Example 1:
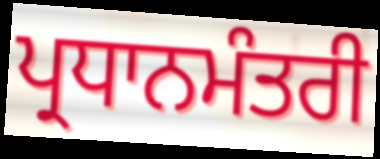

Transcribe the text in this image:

ਪ੍ਰਧਾਨਮੰਤਰੀ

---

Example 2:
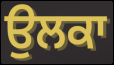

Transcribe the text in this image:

ਉਲਕਾ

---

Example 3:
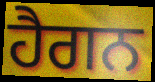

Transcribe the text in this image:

ਹੈਗਨ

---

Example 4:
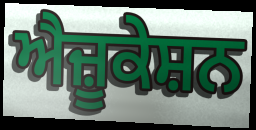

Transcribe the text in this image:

ਐਜ਼ੂਕੇਸ਼ਨ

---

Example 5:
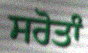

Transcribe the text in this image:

ਸਰੋਤਾੰ